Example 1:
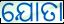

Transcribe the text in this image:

ଯୋତା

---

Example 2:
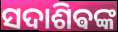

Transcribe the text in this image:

ସଦାଶିଵଙ୍କ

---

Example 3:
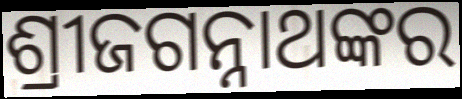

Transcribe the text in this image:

ଶ୍ରୀଜଗନ୍ନାଥଙ୍କର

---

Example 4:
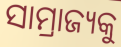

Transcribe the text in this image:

ସାମ୍ରାଜ୍ୟକୁ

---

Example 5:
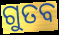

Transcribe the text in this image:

ଗୁତବ